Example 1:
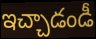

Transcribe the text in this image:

ఇచ్చాడండీ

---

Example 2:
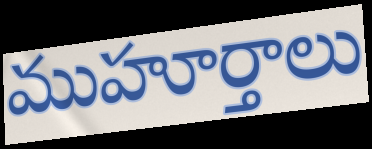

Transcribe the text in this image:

ముహూర్తాలు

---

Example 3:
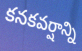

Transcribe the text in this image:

కనకవర్షాన్ని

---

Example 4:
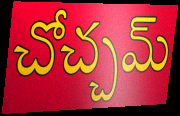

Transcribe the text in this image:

చోచ్చమ్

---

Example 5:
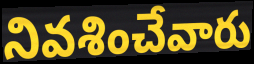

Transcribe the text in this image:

నివశించేవారు